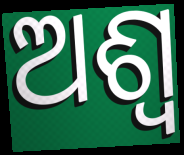
ଅଶ୍ବ